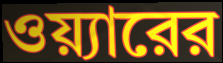
ওয়্যারের